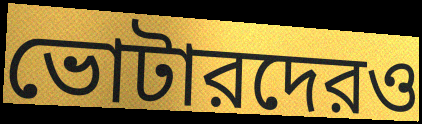
ভোটারদেরও